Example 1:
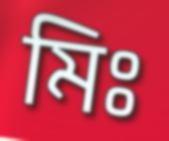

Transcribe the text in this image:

মিঃ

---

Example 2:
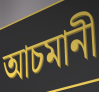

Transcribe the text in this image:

আচমানী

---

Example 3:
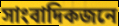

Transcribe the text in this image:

সাংবাদিকজনে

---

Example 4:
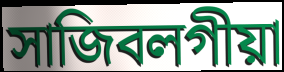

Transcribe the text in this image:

সাজিবলগীয়া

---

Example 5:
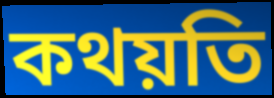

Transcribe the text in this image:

কথয়তি